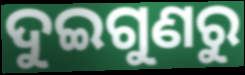
ଦୁଇଗୁଣରୁ